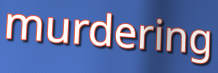
murdering